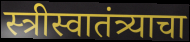
स्त्रीस्वातंत्र्याचा